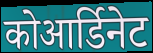
कोआर्डिनेट